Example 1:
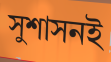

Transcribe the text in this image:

সুশাসনই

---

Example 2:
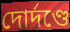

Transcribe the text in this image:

দোর্দণ্ডে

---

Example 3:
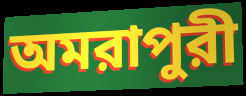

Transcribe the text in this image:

অমরাপুরী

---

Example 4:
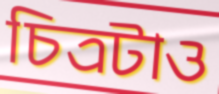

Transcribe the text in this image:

চিত্রটাও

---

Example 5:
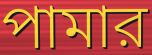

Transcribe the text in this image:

পামার